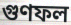
গুণফল